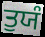
ਤੁਯੰ